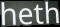
heth